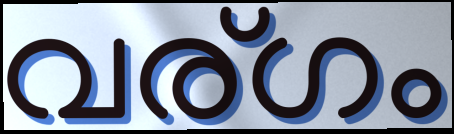
വര്ഗം